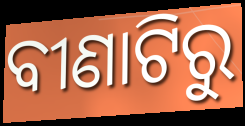
ବୀଣାଟିରୁ